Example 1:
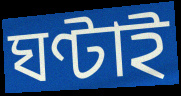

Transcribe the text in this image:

ঘণ্টাই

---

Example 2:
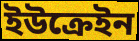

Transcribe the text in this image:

ইউক্ৰেইন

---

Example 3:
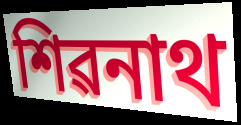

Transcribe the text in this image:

শিৱনাথ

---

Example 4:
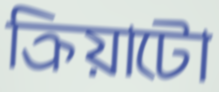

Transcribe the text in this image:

ক্ৰিয়াটো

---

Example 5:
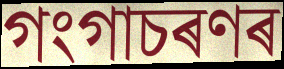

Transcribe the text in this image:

গংগাচৰণৰ